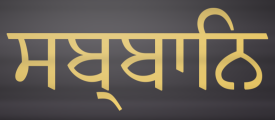
ਸਬ੍ਬਾਨਿ